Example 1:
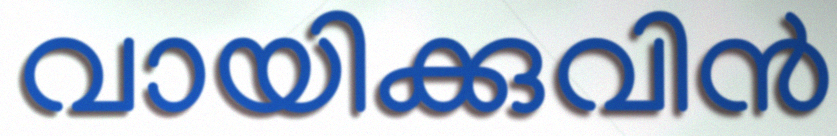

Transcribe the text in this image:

വായിക്കുവിൻ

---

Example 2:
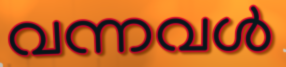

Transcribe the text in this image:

വന്നവൾ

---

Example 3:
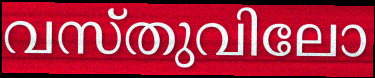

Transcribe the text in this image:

വസ്തുവിലോ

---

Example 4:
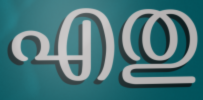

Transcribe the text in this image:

എതു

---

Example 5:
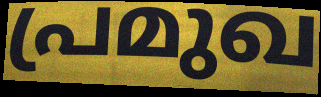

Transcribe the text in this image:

പ്രമുഖ